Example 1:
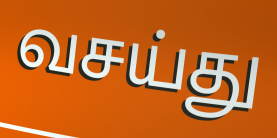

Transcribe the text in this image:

வசய்து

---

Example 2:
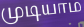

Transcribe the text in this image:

முடியாம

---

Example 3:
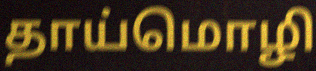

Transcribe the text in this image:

தாய்மொழி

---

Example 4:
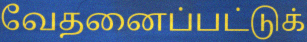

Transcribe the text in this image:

வேதனைப்பட்டுக்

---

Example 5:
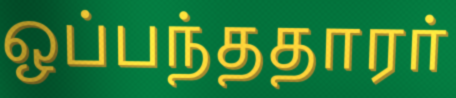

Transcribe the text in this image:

ஒப்பந்ததாரர்